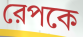
রেপকে